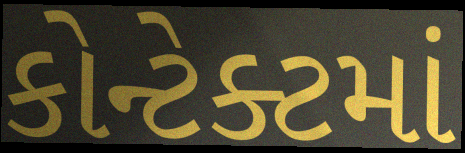
કોન્ટેક્ટમાં